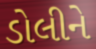
ડોલીને